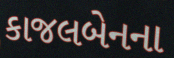
કાજલબેનના